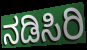
ನಡಿಸಿರಿ